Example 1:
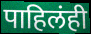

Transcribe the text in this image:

पाहिलंही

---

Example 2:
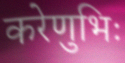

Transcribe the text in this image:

करेणुभिः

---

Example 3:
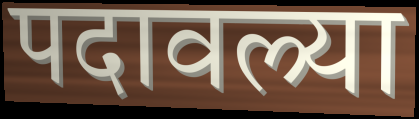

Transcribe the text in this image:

पदावल्या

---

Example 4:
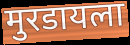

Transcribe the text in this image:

मुरडायला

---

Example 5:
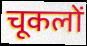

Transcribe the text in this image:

चूकलों